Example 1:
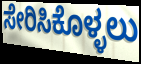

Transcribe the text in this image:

ಸೇರಿಸಿಕೊಳ್ಳಲು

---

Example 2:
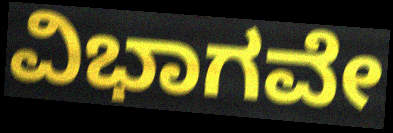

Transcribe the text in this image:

ವಿಭಾಗವೇ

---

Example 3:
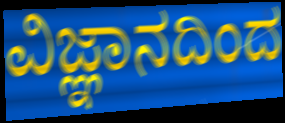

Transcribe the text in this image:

ವಿಜ್ಞಾನದಿಂದ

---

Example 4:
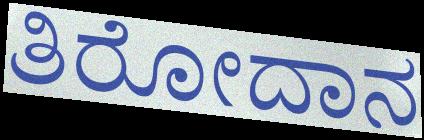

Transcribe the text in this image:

ತಿರೋದಾನ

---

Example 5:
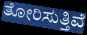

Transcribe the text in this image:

ತೋರಿಸುತ್ತಿವೆ